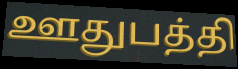
ஊதுபத்தி